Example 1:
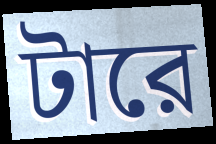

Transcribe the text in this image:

টারে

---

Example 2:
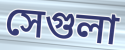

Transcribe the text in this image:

সেগুলা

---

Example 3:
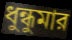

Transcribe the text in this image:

ধুন্ধুমার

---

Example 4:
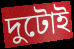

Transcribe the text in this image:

দুটোই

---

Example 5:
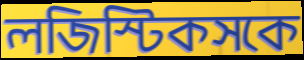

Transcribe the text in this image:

লজিস্টিকসকে